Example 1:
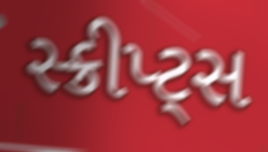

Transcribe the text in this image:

સ્ક્રીપ્ટ્સ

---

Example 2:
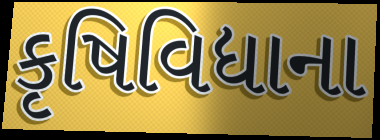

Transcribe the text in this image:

કૃષિવિદ્યાના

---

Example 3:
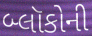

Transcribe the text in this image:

બ્લૉકોની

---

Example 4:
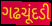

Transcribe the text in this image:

ગઢચૂંદડી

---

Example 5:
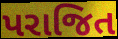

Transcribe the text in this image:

પરાજિત